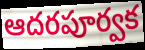
ఆదరపూర్వక